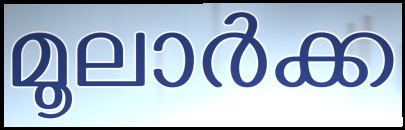
മൂലാർക്ക